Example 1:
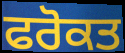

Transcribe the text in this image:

ਫਰੋਕਤ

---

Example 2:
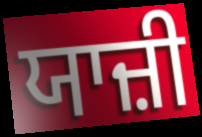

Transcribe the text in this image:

ਯਾਜ਼ੀ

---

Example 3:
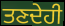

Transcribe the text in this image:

ਤਣਦੇਹੀ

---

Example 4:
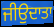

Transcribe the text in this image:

ਜੀਉਦਾਤਾ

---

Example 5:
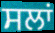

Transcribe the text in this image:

ਸਲਾਂ